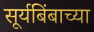
सूर्यबिंबाच्या